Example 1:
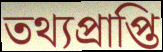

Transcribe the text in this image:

তথ্যপ্রাপ্তি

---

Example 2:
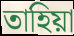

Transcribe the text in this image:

তাহিয়া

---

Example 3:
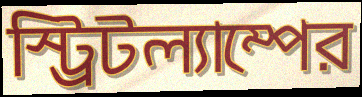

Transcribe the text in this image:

স্ট্রিটল্যাম্পের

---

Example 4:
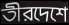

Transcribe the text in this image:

তীরদেশে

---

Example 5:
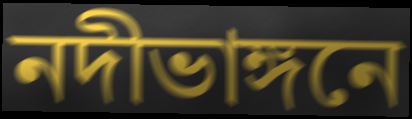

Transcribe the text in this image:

নদীভাঙ্গনে